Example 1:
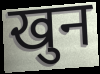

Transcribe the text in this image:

खुन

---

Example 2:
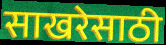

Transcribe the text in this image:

साखरेसाठी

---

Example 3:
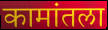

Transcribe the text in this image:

कामांतला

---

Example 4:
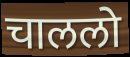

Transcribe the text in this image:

चाललो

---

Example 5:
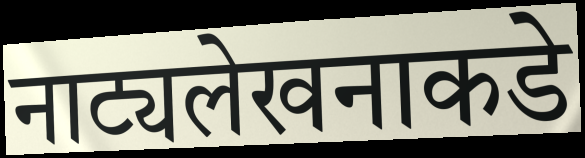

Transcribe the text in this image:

नाट्यलेखनाकडे